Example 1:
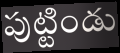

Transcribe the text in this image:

పుట్టిండు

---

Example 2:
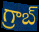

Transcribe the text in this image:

గ్రాబ్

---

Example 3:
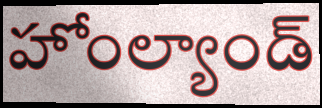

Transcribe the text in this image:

హోంల్యాండ్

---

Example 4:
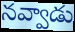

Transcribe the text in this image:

నవ్వాడు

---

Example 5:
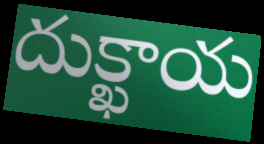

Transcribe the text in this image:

దుక్ఖాయ